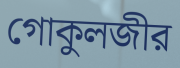
গোকুলজীর